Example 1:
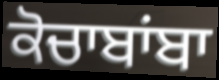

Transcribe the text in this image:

ਕੋਚਾਬਾਂਬਾ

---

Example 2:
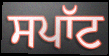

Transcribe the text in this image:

ਸਪਾੱਟ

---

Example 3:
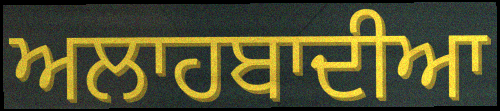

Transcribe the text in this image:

ਅਲਾਹਬਾਦੀਆ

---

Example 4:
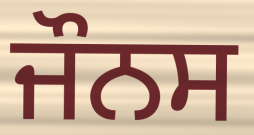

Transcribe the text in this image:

ਜੌਨਸ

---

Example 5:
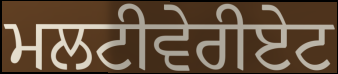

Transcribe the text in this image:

ਮਲਟੀਵੇਰੀਏਟ